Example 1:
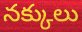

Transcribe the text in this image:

నక్కులు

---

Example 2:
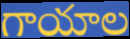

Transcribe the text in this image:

గాయాల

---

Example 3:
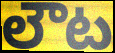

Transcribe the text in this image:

లౌట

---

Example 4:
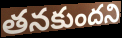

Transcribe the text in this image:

తనకుందని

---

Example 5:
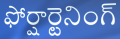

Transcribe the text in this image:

ఫోర్షార్టెనింగ్